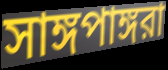
সাঙ্গপাঙ্গরা